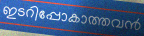
ഇടറിപ്പോകാത്തവൻ